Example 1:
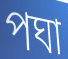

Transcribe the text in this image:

পঘা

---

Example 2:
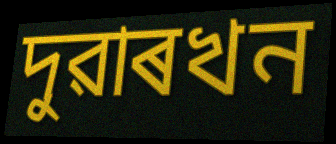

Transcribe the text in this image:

দুৱাৰখন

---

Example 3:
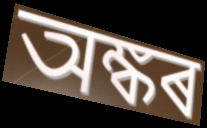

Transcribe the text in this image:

অঙ্কৰ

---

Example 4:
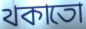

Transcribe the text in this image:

থকাতো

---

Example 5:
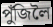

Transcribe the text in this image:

পুঁজিলৈ